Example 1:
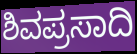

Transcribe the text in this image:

ಶಿವಪ್ರಸಾದಿ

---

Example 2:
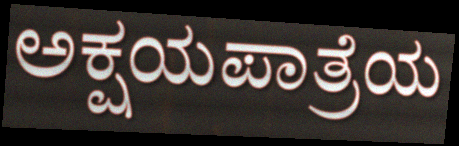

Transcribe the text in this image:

ಅಕ್ಷಯಪಾತ್ರೆಯ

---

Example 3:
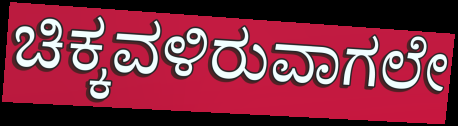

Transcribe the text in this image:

ಚಿಕ್ಕವಳಿರುವಾಗಲೇ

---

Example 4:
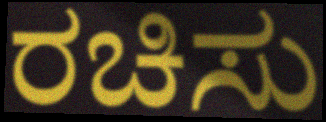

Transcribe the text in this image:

ರಚಿಸು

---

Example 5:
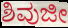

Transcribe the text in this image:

ಶಿವುಜೀ